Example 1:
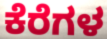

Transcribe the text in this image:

ಕೆರೆಗಳ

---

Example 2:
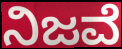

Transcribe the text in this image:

ನಿಜವೆ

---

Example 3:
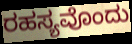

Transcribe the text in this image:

ರಹಸ್ಯವೊಂದು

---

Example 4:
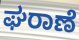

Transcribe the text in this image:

ಘರಾಣೆ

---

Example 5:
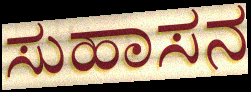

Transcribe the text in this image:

ಸುಹಾಸನ